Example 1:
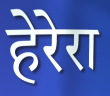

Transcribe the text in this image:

हेरेरा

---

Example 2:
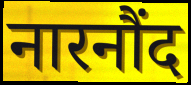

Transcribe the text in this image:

नारनौंद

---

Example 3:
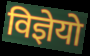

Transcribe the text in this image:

विज्ञेयो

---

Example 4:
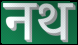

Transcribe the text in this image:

नथ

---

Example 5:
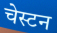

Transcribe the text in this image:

चेस्टन